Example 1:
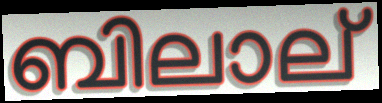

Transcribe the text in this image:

ബിലാല്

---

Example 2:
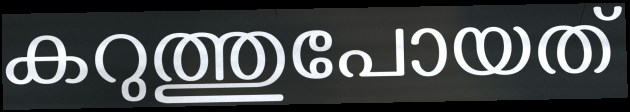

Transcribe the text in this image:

കറുത്തുപോയത്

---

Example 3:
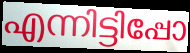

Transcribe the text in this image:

എന്നിട്ടിപ്പോ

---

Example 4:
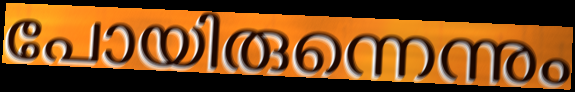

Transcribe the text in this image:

പോയിരുന്നെന്നും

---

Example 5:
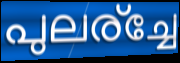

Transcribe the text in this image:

പുലര്ച്ചേ